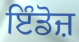
ਇੰਡੋਜ਼